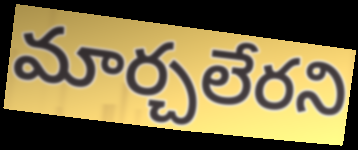
మార్చలేరని